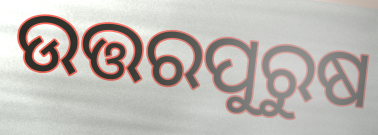
ଉତ୍ତରପୁରୁଷ